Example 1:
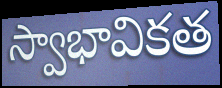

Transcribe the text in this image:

స్వాభావికత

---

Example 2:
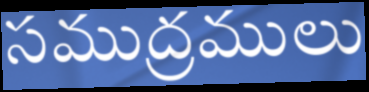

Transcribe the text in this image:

సముద్రములు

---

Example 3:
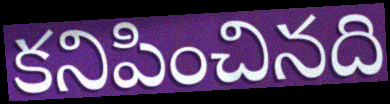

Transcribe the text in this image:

కనిపించినది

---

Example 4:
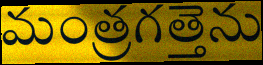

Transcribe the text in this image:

మంత్రగత్తెను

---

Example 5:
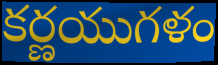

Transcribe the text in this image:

కర్ణయుగళం